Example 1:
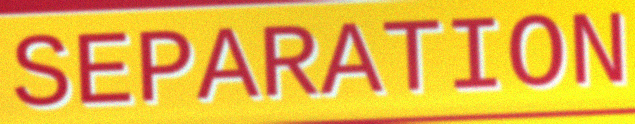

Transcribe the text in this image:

SEPARATION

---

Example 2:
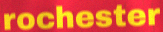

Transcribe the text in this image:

rochester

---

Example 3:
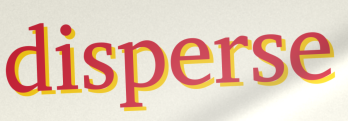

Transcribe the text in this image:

disperse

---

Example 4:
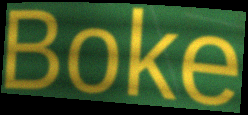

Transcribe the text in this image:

Boke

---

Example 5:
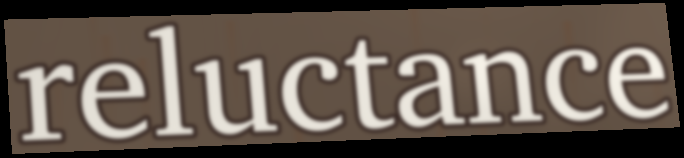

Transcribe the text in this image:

reluctance